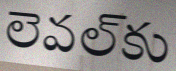
లెవల్‌కు